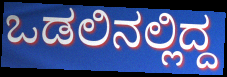
ಒಡಲಿನಲ್ಲಿದ್ದ